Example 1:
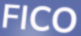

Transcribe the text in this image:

FICO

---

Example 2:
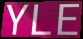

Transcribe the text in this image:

YLE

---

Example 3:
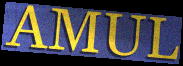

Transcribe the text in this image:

AMUL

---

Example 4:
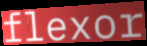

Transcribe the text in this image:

flexor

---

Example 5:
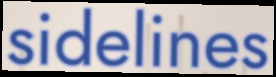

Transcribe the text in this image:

sidelines